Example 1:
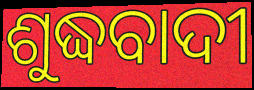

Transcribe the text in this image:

ଶୁଦ୍ଧବାଦୀ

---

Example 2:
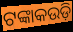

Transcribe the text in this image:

ଟଙ୍କାକଉଡ଼ି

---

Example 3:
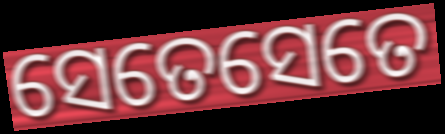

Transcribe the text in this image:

ସେତେସେତେ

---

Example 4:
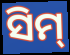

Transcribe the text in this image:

ସିମ୍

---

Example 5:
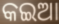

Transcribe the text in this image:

କଇଆ